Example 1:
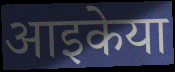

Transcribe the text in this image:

आइकेया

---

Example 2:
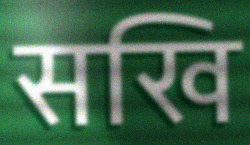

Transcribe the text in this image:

सखि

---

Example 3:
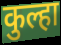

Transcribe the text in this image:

कुल्हा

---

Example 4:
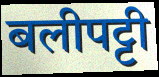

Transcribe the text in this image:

बलीपट्टी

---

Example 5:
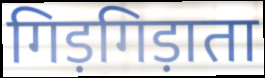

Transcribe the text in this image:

गिड़गिड़ाता